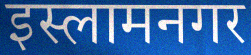
इस्लामनगर